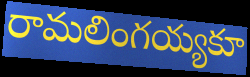
రామలింగయ్యకూ